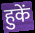
हुकें